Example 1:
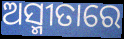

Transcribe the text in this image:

ଅସ୍ମୀତାରେ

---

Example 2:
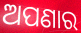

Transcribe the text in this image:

ଅପଣାର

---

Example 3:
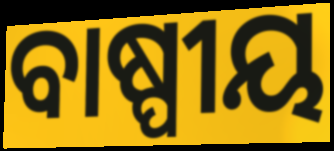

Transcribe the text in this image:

ବାଷ୍ପୀୟ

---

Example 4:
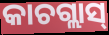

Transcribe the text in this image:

କାଚଗ୍ଲାସ୍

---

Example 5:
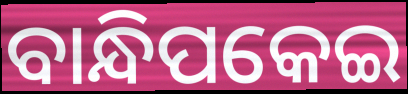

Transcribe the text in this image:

ବାନ୍ଧିପକେଇ